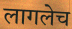
लागलेच